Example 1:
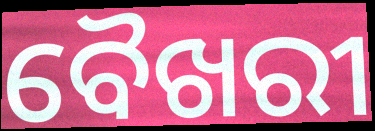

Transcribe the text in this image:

ବୈଖରୀ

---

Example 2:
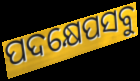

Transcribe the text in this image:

ପଦକ୍ଷେପସବୁ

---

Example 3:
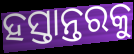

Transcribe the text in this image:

ହସ୍ତାନ୍ତରକୁ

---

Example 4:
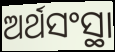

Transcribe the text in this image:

ଅର୍ଥସଂସ୍ଥା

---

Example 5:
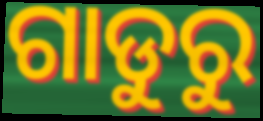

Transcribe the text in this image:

ଗାଡୁରୁ